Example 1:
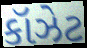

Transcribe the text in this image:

કૉઝેટ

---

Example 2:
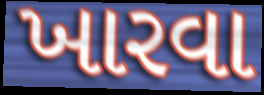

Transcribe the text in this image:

ખારવા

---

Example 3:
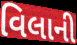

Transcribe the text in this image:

વિલાની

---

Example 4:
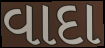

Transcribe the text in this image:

વાદા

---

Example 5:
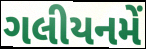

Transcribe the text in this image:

ગલીયનમેં